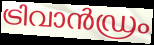
ട്രിവാൻഡ്രം